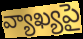
వ్యాఖ్యపై